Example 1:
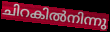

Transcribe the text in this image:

ചിറകിൽനിന്നു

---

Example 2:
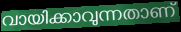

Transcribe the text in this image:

വായിക്കാവുന്നതാണ്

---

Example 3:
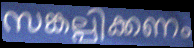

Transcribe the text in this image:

സങ്കല്പിക്കണം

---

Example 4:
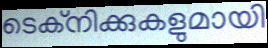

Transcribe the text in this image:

ടെക്നിക്കുകളുമായി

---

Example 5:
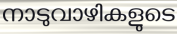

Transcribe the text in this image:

നാടുവാഴികളുടെ